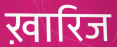
ख़ारिज